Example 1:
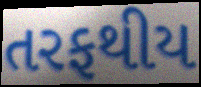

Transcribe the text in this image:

તરફથીય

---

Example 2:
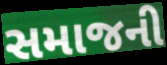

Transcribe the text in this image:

સમાજની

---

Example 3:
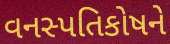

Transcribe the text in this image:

વનસ્પતિકોષને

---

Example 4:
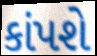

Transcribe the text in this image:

કાંપશે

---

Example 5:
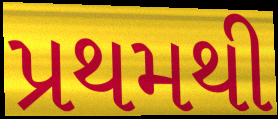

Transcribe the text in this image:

પ્રથમથી